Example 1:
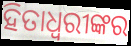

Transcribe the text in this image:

ହିତାଧ୍ଵରୀଙ୍କର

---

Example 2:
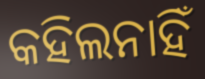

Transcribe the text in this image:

କହିଲନାହିଁ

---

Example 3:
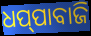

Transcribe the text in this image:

ଧପ୍‌ପାବାଜି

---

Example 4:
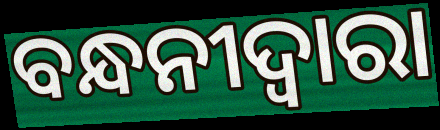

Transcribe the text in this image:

ବନ୍ଧନୀଦ୍ୱାରା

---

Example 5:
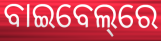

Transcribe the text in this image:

ବାଇବେଲ୍‌ରେ